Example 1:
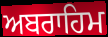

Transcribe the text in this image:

ਅਬਰਾਹਿਮ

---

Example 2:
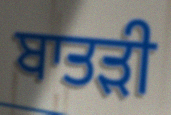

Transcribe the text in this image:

ਬਾਤੜੀ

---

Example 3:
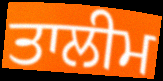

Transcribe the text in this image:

ਤਾਲੀਮ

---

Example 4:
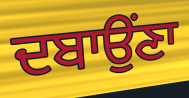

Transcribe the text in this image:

ਦਬਾਉਂਣਾ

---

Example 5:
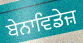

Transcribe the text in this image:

ਬੇਨਾਵਿਡੇਜ਼